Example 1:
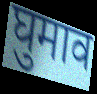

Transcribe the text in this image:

घुमाव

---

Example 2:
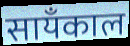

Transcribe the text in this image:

सायँकाल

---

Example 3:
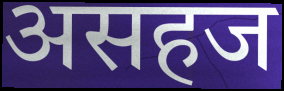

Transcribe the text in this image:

असहज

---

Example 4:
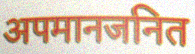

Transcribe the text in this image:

अपमानजनित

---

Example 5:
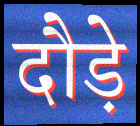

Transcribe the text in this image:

दौड़े